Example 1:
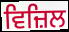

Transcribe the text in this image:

ਵਿਜ਼ਿਲ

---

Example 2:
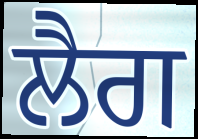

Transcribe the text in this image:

ਲੈਗ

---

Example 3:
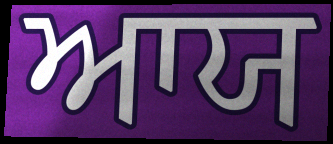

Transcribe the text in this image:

ਆਯ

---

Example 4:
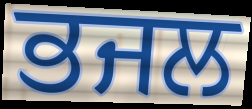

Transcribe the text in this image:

ਭਜਲ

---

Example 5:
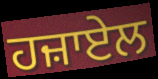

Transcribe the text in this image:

ਹਜ਼ਾਏਲ